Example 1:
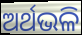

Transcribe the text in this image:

ଅର୍ଥଭଳି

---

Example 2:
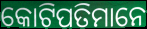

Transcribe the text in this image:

କୋଟିପତିମାନେ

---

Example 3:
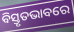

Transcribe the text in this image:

ବିସ୍ତୃତଭାବରେ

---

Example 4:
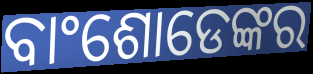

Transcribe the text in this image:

ବାଂଶୋଡେଙ୍କର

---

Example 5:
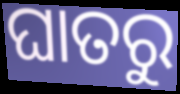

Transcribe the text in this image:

ଘାତରୁ